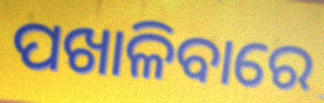
ପଖାଳିବାରେ